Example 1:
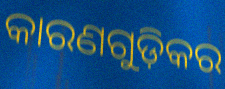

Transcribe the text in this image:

କାରଣଗୁଡ଼ିକର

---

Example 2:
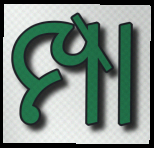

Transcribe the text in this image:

ମ୍ପା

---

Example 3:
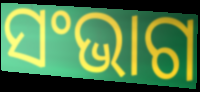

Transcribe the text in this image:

ସଂଭାଗ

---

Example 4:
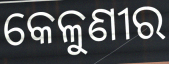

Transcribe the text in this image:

କେଳୁଣୀର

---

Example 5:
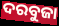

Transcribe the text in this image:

ଦରବୁଜା